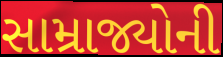
સામ્રાજ્યોની